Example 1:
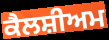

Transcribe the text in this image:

ਕੈਲਸ਼ੀਅਮ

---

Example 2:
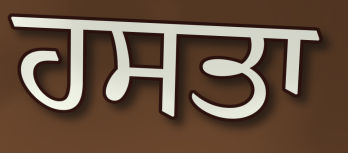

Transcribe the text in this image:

ਹਸਤਾ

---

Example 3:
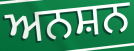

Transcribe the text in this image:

ਅਨਸ਼ਨ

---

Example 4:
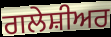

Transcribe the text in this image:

ਗਲੇਸ਼ੀਅਰ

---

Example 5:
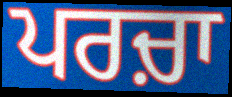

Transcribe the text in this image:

ਪਰਚ਼ਾ